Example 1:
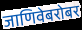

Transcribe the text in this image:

जाणिवेबरोबर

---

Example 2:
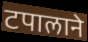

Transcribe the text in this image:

टपालाने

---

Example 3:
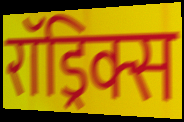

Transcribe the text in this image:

रॉड्रिक्स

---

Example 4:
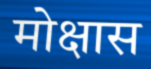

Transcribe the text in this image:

मोक्षास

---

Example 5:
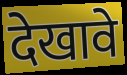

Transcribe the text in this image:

देखावे